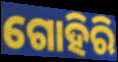
ଗୋହିରି